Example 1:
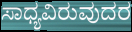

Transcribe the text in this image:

ಸಾಧ್ಯವಿರುವುದರ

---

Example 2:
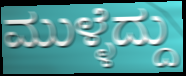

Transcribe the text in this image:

ಮುಳ್ಳೆದ್ದು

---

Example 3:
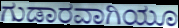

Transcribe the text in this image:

ಗುಡಾರವಾಗಿಯೂ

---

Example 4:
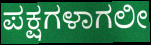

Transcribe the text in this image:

ಪಕ್ಷಗಳಾಗಲೀ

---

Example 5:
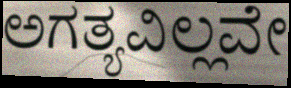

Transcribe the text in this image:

ಅಗತ್ಯವಿಲ್ಲವೇ